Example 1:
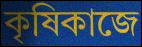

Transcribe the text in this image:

কৃষিকাজে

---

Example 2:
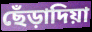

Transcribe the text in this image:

ছেঁড়াদিয়া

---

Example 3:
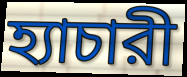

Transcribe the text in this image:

হ্যাচারী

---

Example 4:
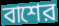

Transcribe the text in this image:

বাশের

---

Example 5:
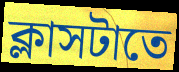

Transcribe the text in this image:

ক্লাসটাতে